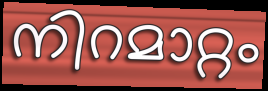
നിറമാറ്റം